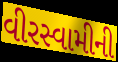
વીરસ્વામીની